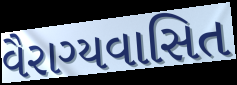
વૈરાગ્યવાસિત